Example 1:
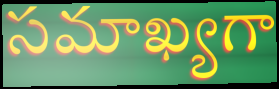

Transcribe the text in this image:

సమాఖ్యగా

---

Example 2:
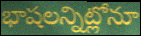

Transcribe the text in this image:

భాషలన్నిట్లోనూ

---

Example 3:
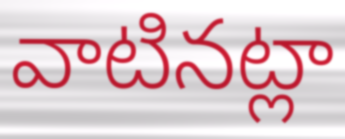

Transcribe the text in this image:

వాటినట్లా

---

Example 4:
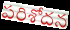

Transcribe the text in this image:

పరిశోదన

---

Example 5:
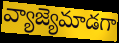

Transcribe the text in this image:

వ్యాజ్యెమాడగా